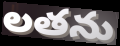
లతను